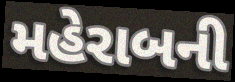
મહેરાબની